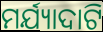
ମର୍ଯ୍ୟାଦାଟି